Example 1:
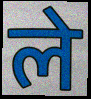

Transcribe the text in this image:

ले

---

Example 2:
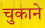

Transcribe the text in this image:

चुकाने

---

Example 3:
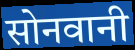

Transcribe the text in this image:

सोनवानी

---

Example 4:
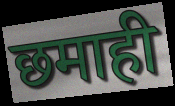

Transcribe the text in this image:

छमाही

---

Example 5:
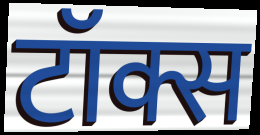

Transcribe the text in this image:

टॉक्स